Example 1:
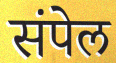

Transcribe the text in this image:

संपेल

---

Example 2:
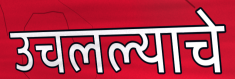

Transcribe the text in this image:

उचलल्याचे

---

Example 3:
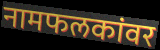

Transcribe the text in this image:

नामफलकांवर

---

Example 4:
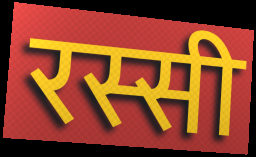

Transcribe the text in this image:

रस्सी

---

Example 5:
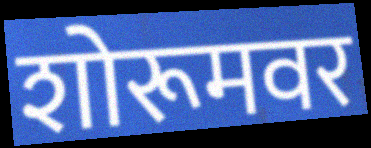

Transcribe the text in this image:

शोरूमवर